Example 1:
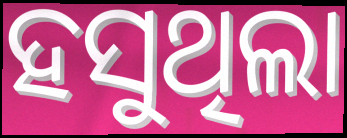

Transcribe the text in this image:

ହସୁଥିଲା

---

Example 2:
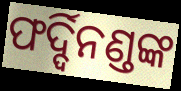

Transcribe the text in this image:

ଫର୍ଦ୍ଦିନଣ୍ଡଙ୍କ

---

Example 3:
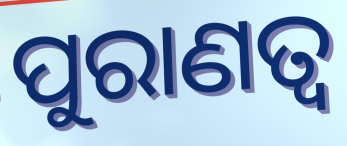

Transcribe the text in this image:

ପୁରାଣତ୍ୱ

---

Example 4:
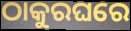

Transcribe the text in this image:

ଠାକୁରଘରେ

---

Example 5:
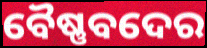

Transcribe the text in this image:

ବୈଷ୍ଣବଦେର